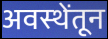
अवस्थेंतून